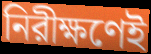
নিরীক্ষণেই